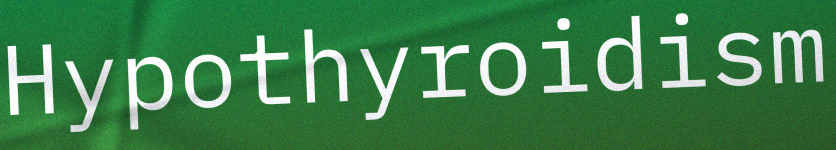
Hypothyroidism